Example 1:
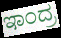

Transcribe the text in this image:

ಇಾಂದ್ರ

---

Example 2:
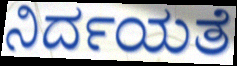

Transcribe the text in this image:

ನಿರ್ದಯತೆ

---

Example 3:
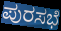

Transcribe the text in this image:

ಪುರಸಭೆ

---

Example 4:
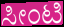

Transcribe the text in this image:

ಸೀಂಟಿ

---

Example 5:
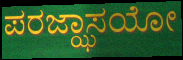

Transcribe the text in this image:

ಪರಜ್ಝಾಸಯೋ